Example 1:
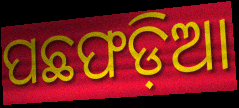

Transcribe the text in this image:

ପଛଫଡ଼ିଆ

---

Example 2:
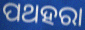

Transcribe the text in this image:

ପଥହରା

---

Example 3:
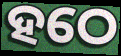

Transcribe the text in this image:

ହଠେ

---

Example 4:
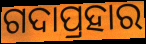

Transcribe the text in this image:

ଗଦାପ୍ରହାର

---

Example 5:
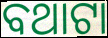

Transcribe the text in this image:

ବଥାଟା